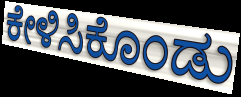
ಕೇಳಿಸಿಕೊಂಡು